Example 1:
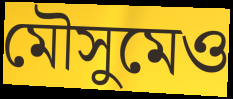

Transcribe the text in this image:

মৌসুমেও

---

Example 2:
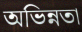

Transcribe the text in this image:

অভিন্নতা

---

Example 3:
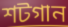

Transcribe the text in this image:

শটগান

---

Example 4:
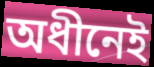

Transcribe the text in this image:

অধীনেই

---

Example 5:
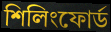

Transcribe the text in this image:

শিলিংফোর্ড